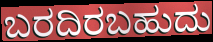
ಬರದಿರಬಹುದು